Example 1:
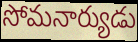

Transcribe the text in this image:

సోమనార్యుడు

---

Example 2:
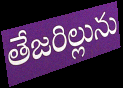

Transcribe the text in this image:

తేజరిల్లును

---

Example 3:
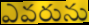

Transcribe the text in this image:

ఎవరును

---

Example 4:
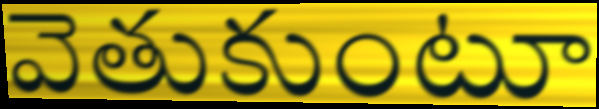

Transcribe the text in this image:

వెతుకుంటూ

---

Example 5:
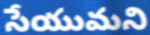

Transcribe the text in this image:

సేయుమని